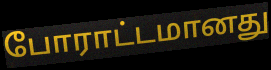
போராட்டமானது